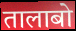
तालाबो